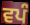
ਵਪੰ